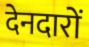
देनदारों